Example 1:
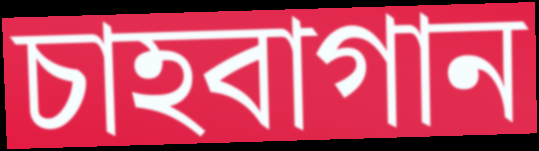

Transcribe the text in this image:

চাহবাগান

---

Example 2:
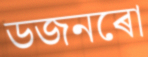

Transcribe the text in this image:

ডজনৰো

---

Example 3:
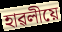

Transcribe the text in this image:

হাৱলীয়ে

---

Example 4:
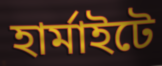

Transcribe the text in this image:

হাৰ্মাইটে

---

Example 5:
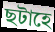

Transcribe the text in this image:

ছটাহে